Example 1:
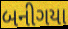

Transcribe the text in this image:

બનીગયા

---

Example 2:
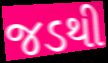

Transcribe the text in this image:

જડથી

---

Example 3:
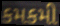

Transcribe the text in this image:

કમકમી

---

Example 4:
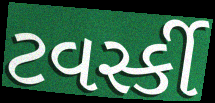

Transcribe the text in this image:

ટવર્સ્કી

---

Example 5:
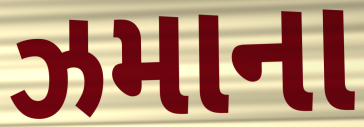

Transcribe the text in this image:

ઝમાના